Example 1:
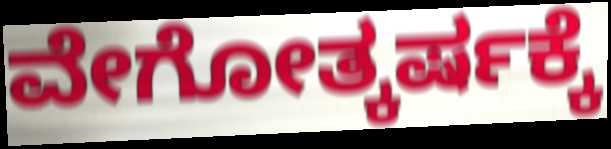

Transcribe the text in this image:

ವೇಗೋತ್ಕರ್ಷಕ್ಕೆ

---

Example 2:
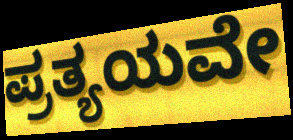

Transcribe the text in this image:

ಪ್ರತ್ಯಯವೇ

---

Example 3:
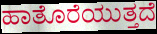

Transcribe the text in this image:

ಹಾತೊರೆಯುತ್ತದೆ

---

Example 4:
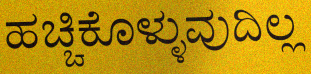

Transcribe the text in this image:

ಹಚ್ಚಿಕೊಳ್ಳುವುದಿಲ್ಲ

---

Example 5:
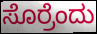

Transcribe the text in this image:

ಸೊರ್ರೆಂದು